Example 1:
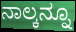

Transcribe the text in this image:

ನಾಲ್ಕನ್ನೂ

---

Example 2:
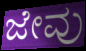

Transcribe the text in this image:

ಜೇವು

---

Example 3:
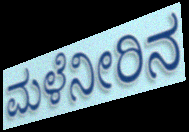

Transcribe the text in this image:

ಮಳೆನೀರಿನ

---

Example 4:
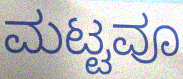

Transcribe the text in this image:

ಮಟ್ಟವೂ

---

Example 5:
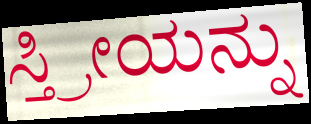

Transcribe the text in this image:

ಸ್ತ್ರೀಯನ್ನು